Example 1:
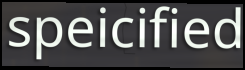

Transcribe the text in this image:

speicified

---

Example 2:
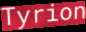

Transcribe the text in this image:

Tyrion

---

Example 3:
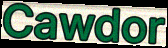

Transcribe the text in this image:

Cawdor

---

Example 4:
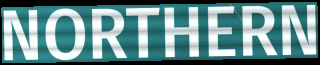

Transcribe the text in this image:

NORTHERN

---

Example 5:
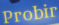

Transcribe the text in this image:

Probir